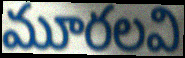
మూరలవి